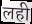
लही